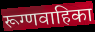
रूग्णवाहिका